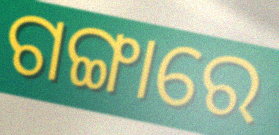
ଗଙ୍ଗାରେ